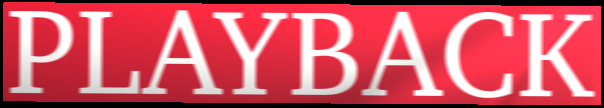
PLAYBACK